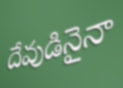
దేవుడినైనా